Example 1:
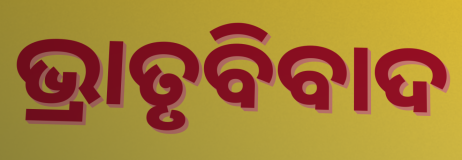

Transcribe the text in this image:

ଭ୍ରାତୃବିବାଦ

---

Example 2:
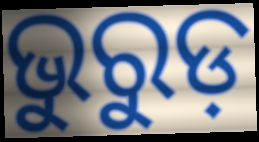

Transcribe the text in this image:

ଭୁରୁଡ଼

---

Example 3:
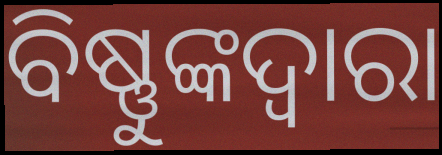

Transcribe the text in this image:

ବିଷ୍ଣୁଙ୍କଦ୍ୱାରା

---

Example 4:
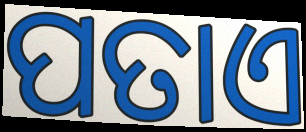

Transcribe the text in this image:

ପତାଏ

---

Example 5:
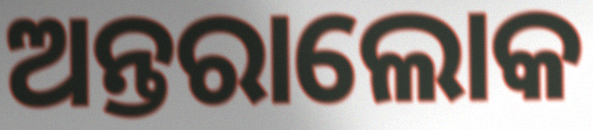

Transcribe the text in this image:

ଅନ୍ତରାଲୋକ